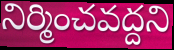
నిర్మించవద్దని